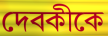
দেবকীকে